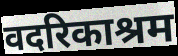
वदरिकाश्रम